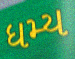
ધમ્ય